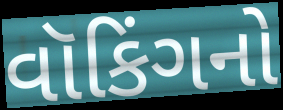
વૉકિંગનો